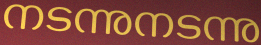
നടന്നുനടന്നു